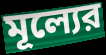
মূল্যের